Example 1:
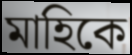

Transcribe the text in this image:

মাহিকে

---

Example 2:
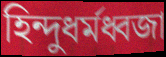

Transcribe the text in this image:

হিন্দুধর্মধ্বজা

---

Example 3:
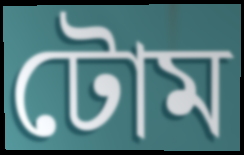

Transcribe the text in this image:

টোম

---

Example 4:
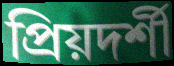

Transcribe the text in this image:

প্রিয়দর্শী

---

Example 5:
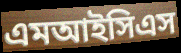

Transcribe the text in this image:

এমআইসিএস